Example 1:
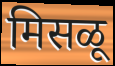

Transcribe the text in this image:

मिसळू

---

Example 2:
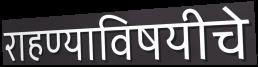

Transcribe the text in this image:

राहण्याविषयीचे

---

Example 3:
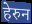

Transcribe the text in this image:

हेरुन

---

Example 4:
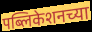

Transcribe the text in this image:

पब्लिकेशनच्या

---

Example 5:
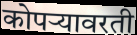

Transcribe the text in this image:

कोपऱ्यावरती